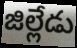
జిల్లేడు